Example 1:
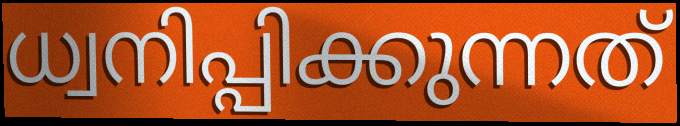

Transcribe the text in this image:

ധ്വനിപ്പിക്കുന്നത്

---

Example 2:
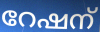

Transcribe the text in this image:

റേഷന്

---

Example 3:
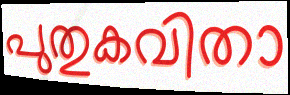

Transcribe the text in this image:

പുതുകവിതാ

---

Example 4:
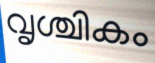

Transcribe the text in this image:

വൃശ്ചികം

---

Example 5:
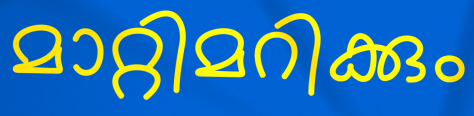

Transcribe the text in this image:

മാറ്റിമറിക്കും